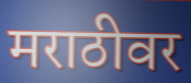
मराठीवर